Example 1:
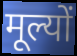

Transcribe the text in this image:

मूल्यों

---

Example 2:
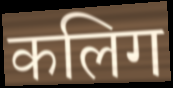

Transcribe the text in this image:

कलिग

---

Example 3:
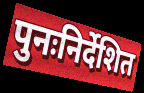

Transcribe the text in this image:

पुनःनिर्देशित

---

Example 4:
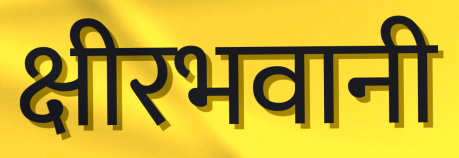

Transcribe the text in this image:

क्षीरभवानी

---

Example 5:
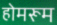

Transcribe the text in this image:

होमरूम